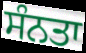
ਸੰਨਤਾ